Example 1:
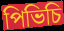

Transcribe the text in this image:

পিভিচি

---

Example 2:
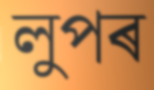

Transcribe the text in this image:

লুপৰ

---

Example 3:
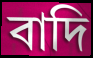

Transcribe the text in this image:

বাদি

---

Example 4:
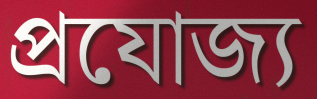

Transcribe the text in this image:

প্ৰযোজ্য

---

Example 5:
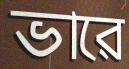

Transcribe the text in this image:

ভাৱে